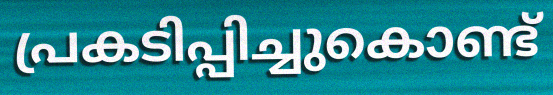
പ്രകടിപ്പിച്ചുകൊണ്ട്